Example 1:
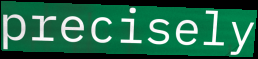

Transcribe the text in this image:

precisely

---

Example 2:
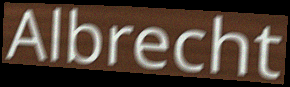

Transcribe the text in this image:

Albrecht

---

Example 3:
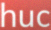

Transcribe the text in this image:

huc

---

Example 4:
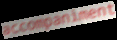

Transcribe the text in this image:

accompaniment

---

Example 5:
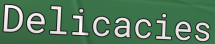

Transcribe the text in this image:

Delicacies